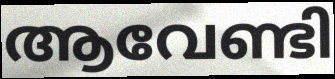
ആവേണ്ടി